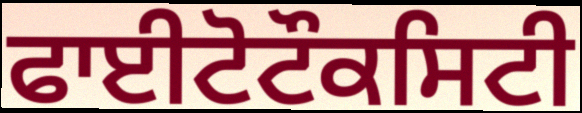
ਫਾਈਟੋਟੌਕਸਿਟੀ